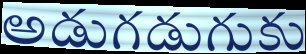
అడుగడుగుకు